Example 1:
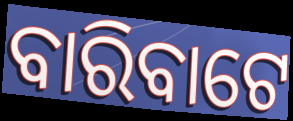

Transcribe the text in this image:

ବାରିବାଟେ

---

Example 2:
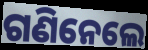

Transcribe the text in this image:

ଗଣିନେଲେ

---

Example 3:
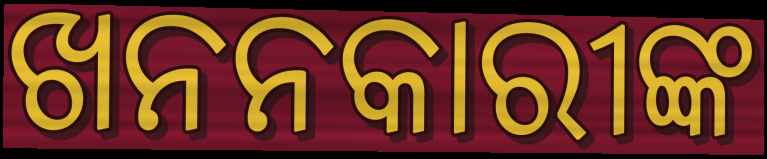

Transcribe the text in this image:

ଖନନକାରୀଙ୍କ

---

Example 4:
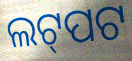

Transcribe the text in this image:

ଲଟ୍‌ପଟ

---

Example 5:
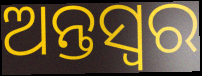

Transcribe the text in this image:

ଅନ୍ତସ୍ୱର